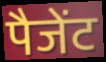
पैजेंट